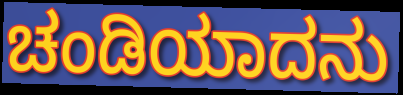
ಚಂಡಿಯಾದನು